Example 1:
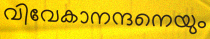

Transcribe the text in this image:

വിവേകാനന്ദനെയും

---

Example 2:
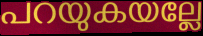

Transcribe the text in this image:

പറയുകയല്ലേ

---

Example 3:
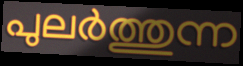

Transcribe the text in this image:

പുലർത്തുന്ന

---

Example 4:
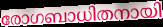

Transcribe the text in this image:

രോഗബാധിതനായി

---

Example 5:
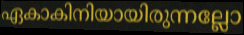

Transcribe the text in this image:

ഏകാകിനിയായിരുന്നല്ലോ